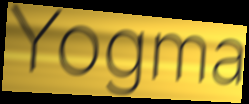
Yogma